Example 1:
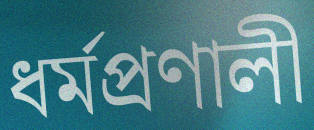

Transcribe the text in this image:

ধর্মপ্রণালী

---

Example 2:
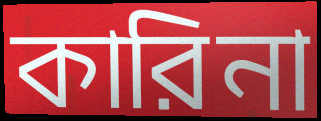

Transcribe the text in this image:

কারিনা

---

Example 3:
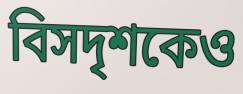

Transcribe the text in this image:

বিসদৃশকেও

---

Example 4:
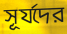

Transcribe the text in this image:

সূর্যদের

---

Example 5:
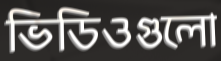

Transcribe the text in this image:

ভিডিওগুলো